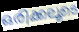
ഒരിക്കലൂടെ